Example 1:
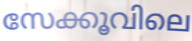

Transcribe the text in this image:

സേക്കൂവിലെ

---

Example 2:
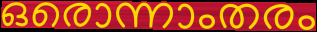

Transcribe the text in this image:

ഒരൊന്നാംതരം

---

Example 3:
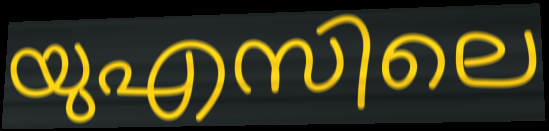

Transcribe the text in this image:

യുഎസിലെ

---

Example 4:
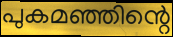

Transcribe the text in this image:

പുകമഞ്ഞിന്റെ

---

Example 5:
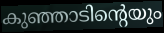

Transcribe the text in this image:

കുഞ്ഞാടിന്റെയും